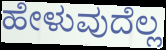
ಹೇಳುವುದೆಲ್ಲ